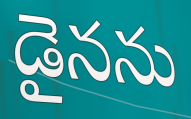
డైనను